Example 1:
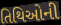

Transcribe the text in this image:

તિથિઓની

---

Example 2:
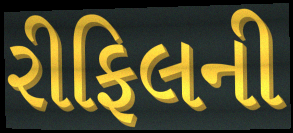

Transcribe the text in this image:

રીફિલની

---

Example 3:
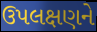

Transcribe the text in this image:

ઉપલક્ષણને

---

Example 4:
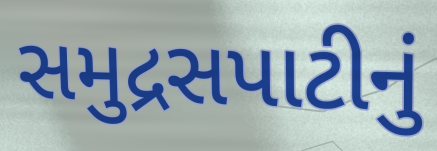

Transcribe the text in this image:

સમુદ્રસપાટીનું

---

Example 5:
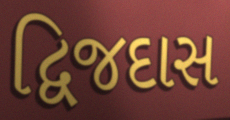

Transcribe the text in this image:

દ્વિજદાસ